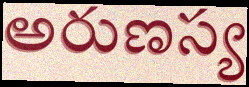
అరుణస్య